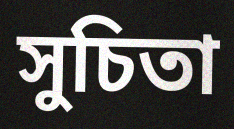
সুচিতা